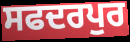
ਸਫਦਰਪੁਰ